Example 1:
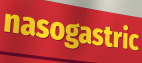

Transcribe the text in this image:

nasogastric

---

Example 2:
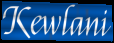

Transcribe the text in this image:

Kewlani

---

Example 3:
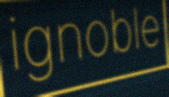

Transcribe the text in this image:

ignoble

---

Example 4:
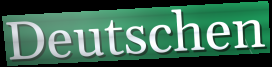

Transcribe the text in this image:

Deutschen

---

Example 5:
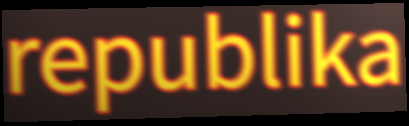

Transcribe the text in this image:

republika